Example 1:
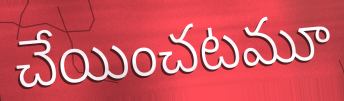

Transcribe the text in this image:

చేయించటమూ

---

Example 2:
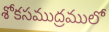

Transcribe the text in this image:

శోకసముద్రములో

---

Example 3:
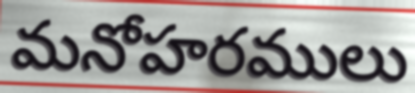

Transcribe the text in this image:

మనోహరములు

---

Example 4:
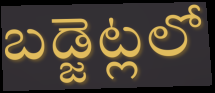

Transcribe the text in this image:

బడ్జెట్లలో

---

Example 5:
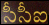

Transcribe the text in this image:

సీసీఐ